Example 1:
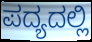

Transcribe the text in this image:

ಪದ್ಯದಲ್ಲಿ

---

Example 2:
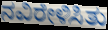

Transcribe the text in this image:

ನವಿರೇಳಿಸಿತು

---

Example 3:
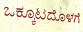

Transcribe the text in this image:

ಒಕ್ಕೂಟದೊಳಗೆ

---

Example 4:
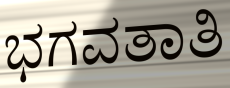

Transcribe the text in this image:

ಭಗವತಾತಿ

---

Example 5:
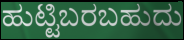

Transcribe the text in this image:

ಹುಟ್ಟಿಬರಬಹುದು